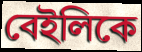
বেইলিকে